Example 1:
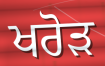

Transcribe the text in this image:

ਖਰੋੜ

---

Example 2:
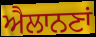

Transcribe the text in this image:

ਐਲਾਨਣਾਂ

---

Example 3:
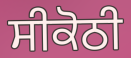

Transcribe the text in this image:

ਸੀਕੋਠੀ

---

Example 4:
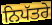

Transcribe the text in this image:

ਨਿਪੱਤਰੇ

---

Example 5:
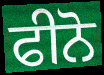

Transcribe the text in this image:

ਫੀਨੋ